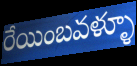
రేయింబవళ్ళూ